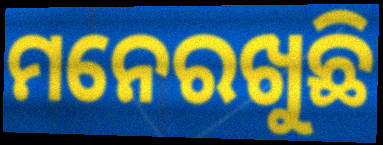
ମନେରଖୁଛି